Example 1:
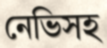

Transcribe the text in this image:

নেভিসহ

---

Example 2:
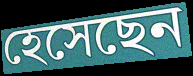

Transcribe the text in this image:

হেসেছেন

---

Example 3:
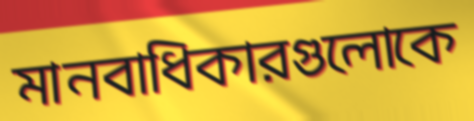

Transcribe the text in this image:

মানবাধিকারগুলোকে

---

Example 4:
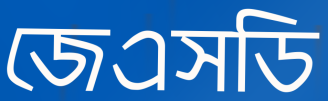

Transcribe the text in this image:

জেএসডি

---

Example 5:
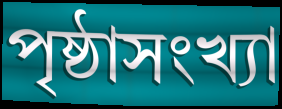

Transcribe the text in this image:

পৃষ্ঠাসংখ্যা